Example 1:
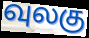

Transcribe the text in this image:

வுலகு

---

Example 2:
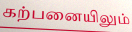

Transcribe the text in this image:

கற்பனையிலும்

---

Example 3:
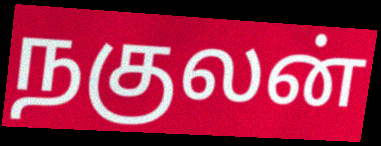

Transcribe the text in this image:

நகுலன்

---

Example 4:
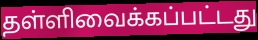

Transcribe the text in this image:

தள்ளிவைக்கப்பட்டது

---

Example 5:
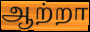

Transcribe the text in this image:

ஆற்றா